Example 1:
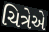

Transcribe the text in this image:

ચિત્રેએ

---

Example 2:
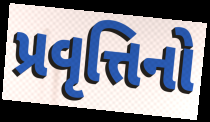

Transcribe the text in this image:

પ્રવૃત્તિનો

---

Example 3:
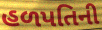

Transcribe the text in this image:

હળપતિની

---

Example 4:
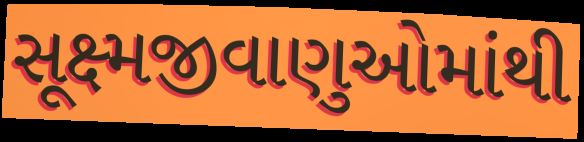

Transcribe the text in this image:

સૂક્ષ્મજીવાણુઓમાંથી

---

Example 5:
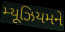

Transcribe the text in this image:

મ્યૂઝિયમને